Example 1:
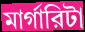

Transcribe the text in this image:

মার্গারিটা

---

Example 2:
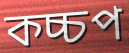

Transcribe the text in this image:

কচ্চপ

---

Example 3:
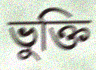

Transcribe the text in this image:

ভুক্তি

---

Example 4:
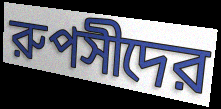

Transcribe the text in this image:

রুপসীদের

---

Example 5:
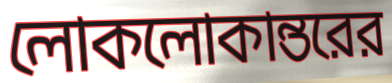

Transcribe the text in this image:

লোকলোকান্তরের